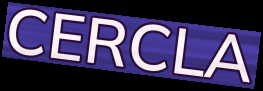
CERCLA